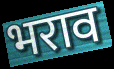
भराव